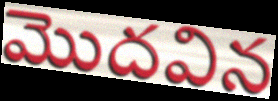
మొదవిన